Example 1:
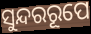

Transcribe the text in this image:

ସୁନ୍ଦରରୂପେ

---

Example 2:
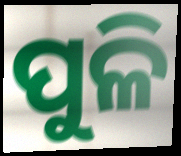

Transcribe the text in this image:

ପୁଳି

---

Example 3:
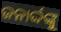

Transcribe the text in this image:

ଜନାର୍ଦ୍ଦଙ୍କୁ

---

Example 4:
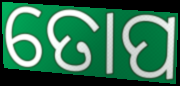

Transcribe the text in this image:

ତୋପ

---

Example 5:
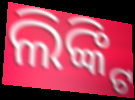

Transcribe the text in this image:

ଲିଙ୍କ୍ଟି